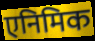
एनिमिक